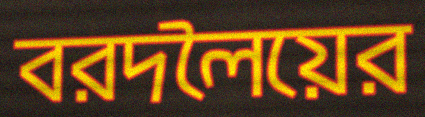
বরদলৈয়ের